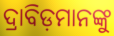
ଦ୍ରାବିଡ଼ମାନଙ୍କୁ